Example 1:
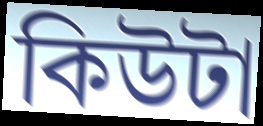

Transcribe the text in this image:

কিউটা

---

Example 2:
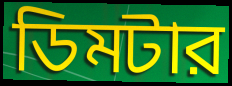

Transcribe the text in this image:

ডিমটার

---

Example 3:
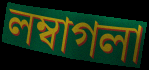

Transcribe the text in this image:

লম্বাগলা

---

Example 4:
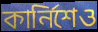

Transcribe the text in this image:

কার্নিশেও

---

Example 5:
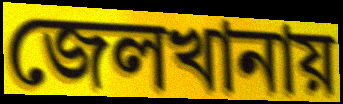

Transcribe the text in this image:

জেলখানায়